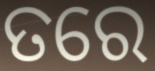
ତରେ